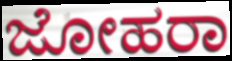
ಜೋಹರಾ